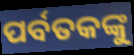
ପର୍ବତକଙ୍କୁ